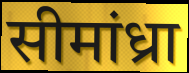
सीमांध्रा